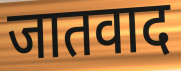
जातवाद